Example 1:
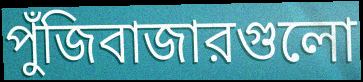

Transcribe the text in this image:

পুঁজিবাজারগুলো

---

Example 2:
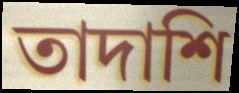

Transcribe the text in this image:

তাদাশি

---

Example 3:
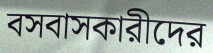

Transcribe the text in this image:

বসবাসকারীদের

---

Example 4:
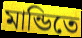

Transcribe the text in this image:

মান্ডিতে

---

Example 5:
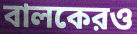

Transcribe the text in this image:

বালকেরও